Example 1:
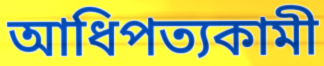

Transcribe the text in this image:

আধিপত্যকামী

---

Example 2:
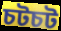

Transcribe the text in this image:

চটচট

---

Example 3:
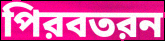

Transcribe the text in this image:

পিরবতরন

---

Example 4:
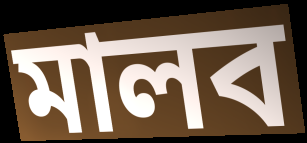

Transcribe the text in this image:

মালব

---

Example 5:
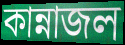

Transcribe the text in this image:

কান্নাজল